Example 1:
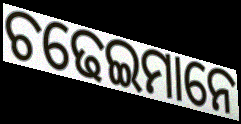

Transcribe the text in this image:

ଚଢେଇମାନେ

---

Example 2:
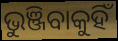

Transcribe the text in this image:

ଭୁଞ୍ଜିବାକୁହିଁ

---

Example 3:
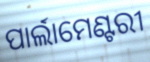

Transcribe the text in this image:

ପାର୍ଲାମେଣ୍ଟରୀ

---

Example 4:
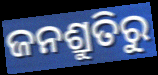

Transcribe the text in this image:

ଜନଶ୍ରୁତିରୁ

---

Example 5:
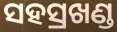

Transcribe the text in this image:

ସହସ୍ରଖଣ୍ଡ